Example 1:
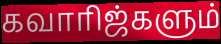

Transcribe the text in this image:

கவாரிஜ்களும்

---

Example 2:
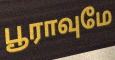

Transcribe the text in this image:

பூராவுமே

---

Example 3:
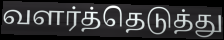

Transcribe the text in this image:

வளர்த்தெடுத்து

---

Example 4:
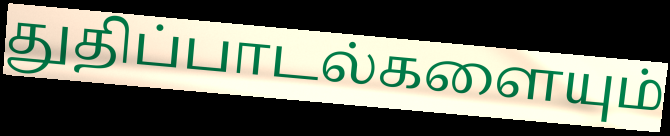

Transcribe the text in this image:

துதிப்பாடல்களையும்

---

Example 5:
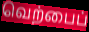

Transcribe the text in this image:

வெற்பைப்